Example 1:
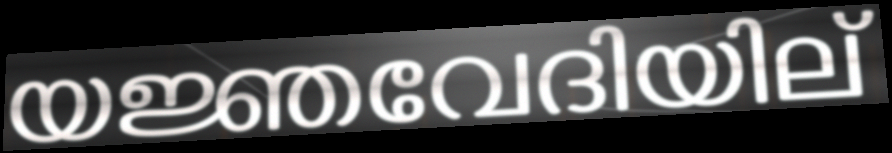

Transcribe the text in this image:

യജ്ഞവേദിയില്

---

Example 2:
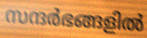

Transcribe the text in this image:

സന്ദർഭങ്ങളിൽ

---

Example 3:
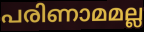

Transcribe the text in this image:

പരിണാമമല്ല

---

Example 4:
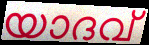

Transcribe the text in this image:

യാദവ്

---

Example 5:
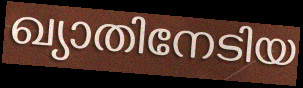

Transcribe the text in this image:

ഖ്യാതിനേടിയ